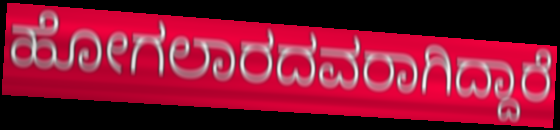
ಹೋಗಲಾರದವರಾಗಿದ್ದಾರೆ